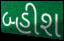
બ્હીશ